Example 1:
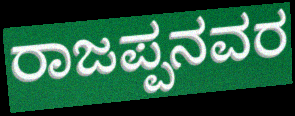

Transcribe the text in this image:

ರಾಜಪ್ಪನವರ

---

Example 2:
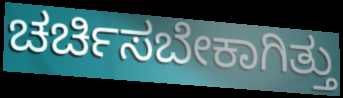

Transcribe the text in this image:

ಚರ್ಚಿಸಬೇಕಾಗಿತ್ತು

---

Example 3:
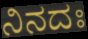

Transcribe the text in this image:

ನಿನದಃ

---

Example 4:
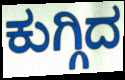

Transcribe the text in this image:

ಕುಗ್ಗಿದ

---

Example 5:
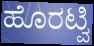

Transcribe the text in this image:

ಹೊರಟ್ವಿ